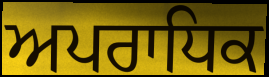
ਅਪਰਾਧਿਕ